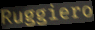
Ruggiero